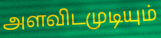
அளவிடமுடியும்